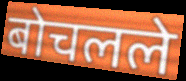
बोचलले